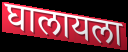
घालायला